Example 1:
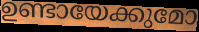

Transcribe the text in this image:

ഉണ്ടായേക്കുമോ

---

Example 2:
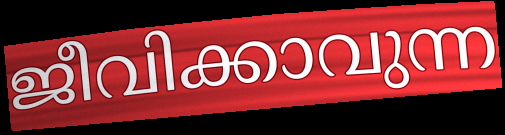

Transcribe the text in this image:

ജീവിക്കാവുന്ന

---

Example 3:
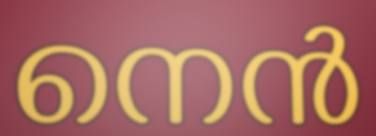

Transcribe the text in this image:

നെൻ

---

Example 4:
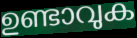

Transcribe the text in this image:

ഉണ്ടാവുക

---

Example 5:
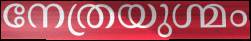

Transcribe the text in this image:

നേത്രയുഗ്മം